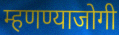
म्हणण्याजोगी